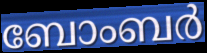
ബോംബർ